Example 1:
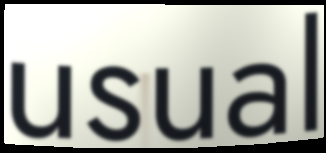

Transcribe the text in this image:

usual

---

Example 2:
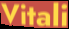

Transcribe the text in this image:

Vitali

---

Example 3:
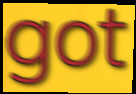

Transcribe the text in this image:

got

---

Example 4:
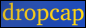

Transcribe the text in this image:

dropcap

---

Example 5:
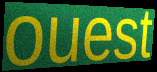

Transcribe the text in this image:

ouest